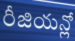
రీజియన్లో